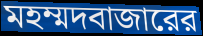
মহম্মদবাজারের